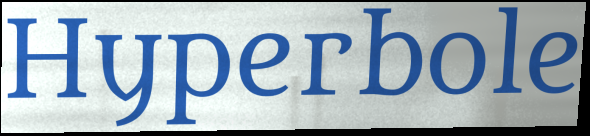
Hyperbole